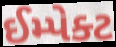
ઈમ્પેક્ટ